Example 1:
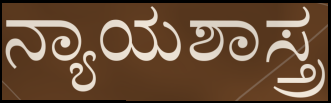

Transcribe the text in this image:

ನ್ಯಾಯಶಾಸ್ತ್ರ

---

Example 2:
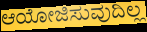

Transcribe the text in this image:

ಆಯೋಜಿಸುವುದಿಲ್ಲ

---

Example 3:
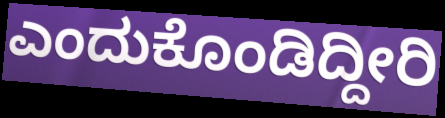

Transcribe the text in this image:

ಎಂದುಕೊಂಡಿದ್ದೀರಿ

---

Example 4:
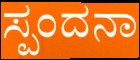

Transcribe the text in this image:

ಸ್ಪಂದನಾ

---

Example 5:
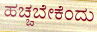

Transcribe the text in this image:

ಹಚ್ಚಬೇಕೆಂದು